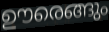
ഊരെങ്ങും